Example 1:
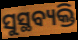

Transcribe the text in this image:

ସୁସ୍ଥବ୍ୟକ୍ତି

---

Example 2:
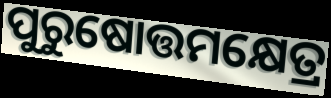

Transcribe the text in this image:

ପୁରୁଷୋତ୍ତମକ୍ଷେତ୍ର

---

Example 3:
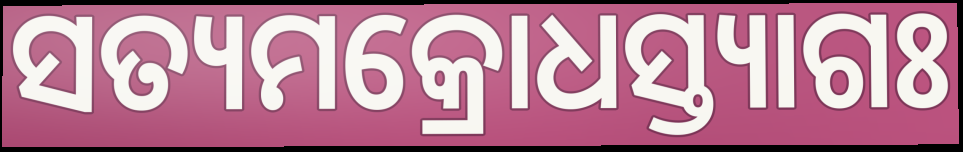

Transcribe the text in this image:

ସତ୍ୟମକ୍ରୋଧସ୍ତ୍ୟାଗଃ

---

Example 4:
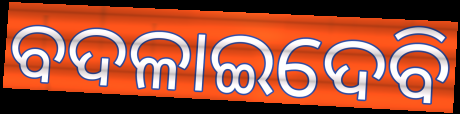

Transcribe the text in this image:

ବଦଳାଇଦେବି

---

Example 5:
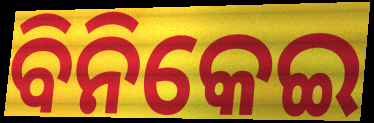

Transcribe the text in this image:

ବିନିକେଇ